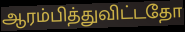
ஆரம்பித்துவிட்டதோ